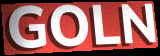
GOLN